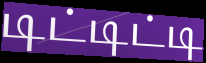
டிட்டிட்டி